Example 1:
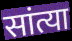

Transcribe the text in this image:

सांत्या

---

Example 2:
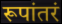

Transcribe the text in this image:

रूपांतरं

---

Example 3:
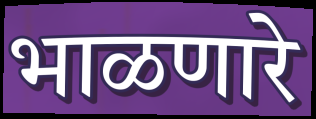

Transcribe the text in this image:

भाळणारे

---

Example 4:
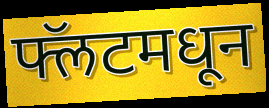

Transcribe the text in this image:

फ्लॅटमधून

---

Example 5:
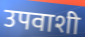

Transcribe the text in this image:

उपवाशी